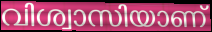
വിശ്വാസിയാണ്